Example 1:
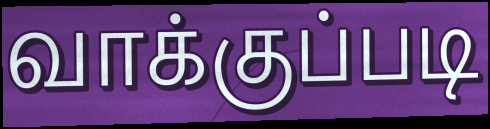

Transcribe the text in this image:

வாக்குப்படி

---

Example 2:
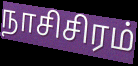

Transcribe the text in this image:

நாசிசிரம்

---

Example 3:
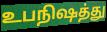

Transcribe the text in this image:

உபநிஷத்து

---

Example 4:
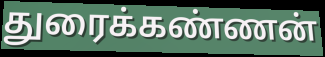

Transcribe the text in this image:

துரைக்கண்ணன்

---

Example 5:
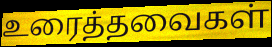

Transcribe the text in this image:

உரைத்தவைகள்